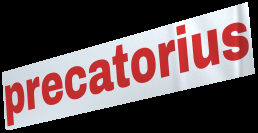
precatorius